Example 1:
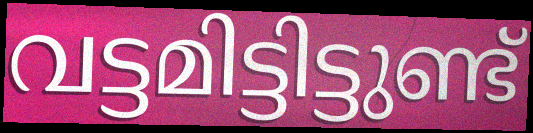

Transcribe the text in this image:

വട്ടമിട്ടിട്ടുണ്ട്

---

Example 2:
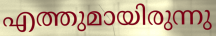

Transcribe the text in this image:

എത്തുമായിരുന്നു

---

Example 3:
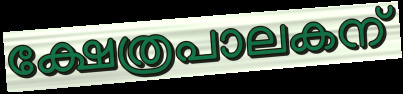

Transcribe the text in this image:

ക്ഷേത്രപാലകന്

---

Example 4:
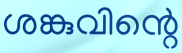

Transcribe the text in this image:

ശങ്കുവിന്റെ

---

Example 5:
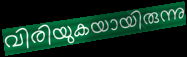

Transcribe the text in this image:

വിരിയുകയായിരുന്നു